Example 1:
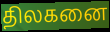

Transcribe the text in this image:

திலகனை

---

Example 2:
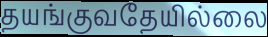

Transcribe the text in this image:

தயங்குவதேயில்லை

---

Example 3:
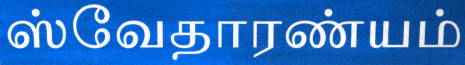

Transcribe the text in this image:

ஸ்வேதாரண்யம்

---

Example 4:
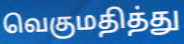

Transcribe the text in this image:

வெகுமதித்து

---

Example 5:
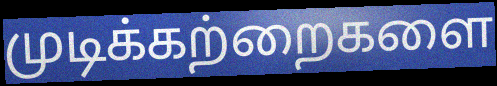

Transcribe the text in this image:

முடிக்கற்றைகளை